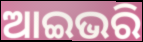
ଆଇଭରି